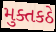
મુક્તકઠે